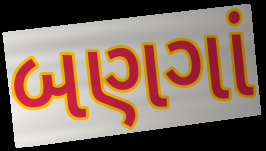
બણગાં